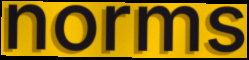
norms